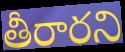
తీరారని